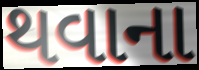
થવાના